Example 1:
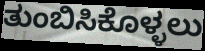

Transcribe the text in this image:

ತುಂಬಿಸಿಕೊಳ್ಳಲು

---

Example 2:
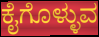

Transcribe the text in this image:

ಕೈಗೊಳ್ಳುವ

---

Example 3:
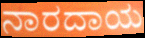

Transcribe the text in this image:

ನಾರದಾಯ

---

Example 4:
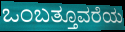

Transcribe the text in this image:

ಒಂಬತ್ತೂವರೆಯ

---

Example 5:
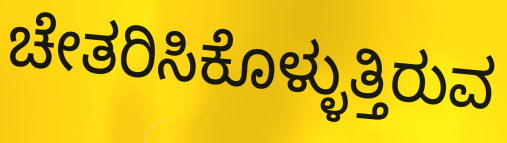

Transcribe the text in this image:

ಚೇತರಿಸಿಕೊಳ್ಳುತ್ತಿರುವ